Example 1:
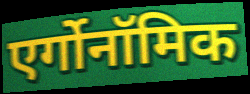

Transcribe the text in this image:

एर्गोनॉमिक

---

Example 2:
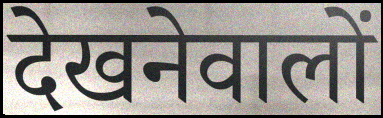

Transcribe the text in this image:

देखनेवालों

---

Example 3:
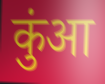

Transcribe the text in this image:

कुंआ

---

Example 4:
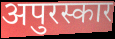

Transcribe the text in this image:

अपुरस्कार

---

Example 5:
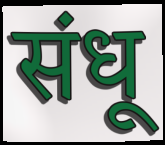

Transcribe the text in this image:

संधू